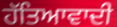
ਹੱਤਿਆਵਾਦੀ